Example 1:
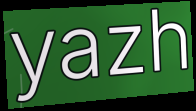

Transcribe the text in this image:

yazh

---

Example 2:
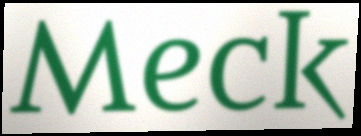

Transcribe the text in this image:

Meck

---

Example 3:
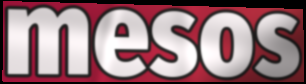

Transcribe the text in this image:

mesos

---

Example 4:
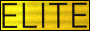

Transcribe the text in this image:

ELITE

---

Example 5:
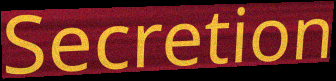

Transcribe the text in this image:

Secretion